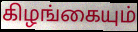
கிழங்கையும்